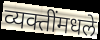
व्यक्तींमधले